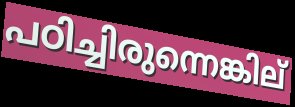
പഠിച്ചിരുന്നെങ്കില്